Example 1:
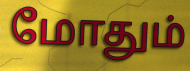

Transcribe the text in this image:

மோதும்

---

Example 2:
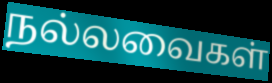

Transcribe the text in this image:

நல்லவைகள்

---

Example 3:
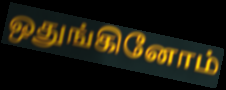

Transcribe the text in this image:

ஒதுங்கினோம்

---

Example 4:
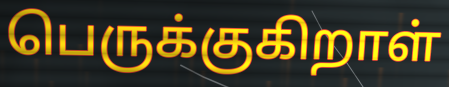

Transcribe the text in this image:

பெருக்குகிறாள்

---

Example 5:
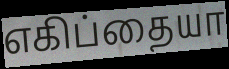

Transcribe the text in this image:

எகிப்தையா